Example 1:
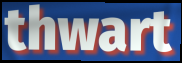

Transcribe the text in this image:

thwart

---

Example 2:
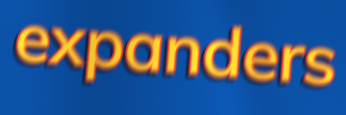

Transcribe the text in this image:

expanders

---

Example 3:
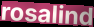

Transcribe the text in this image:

rosalind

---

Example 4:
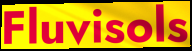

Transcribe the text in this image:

Fluvisols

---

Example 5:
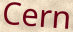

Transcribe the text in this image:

Cern